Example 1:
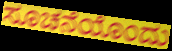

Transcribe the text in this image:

ಸೂಚನೆಯೊಂದು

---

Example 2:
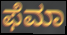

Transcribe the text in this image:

ಫೆಮಾ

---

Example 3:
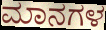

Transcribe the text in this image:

ಮಾನಗಳ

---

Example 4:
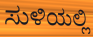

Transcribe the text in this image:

ಸುಳಿಯಲ್ಲಿ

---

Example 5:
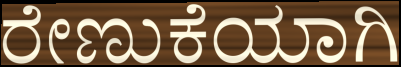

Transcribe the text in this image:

ರೇಣುಕೆಯಾಗಿ